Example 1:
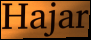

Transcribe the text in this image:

Hajar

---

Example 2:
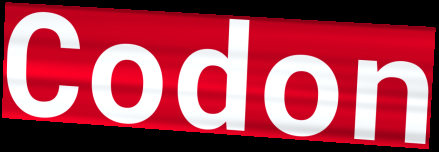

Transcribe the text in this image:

Codon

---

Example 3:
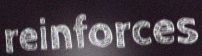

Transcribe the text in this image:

reinforces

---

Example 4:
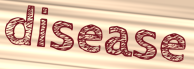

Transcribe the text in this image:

disease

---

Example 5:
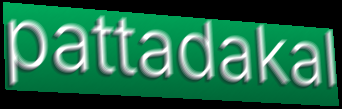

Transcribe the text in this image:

pattadakal